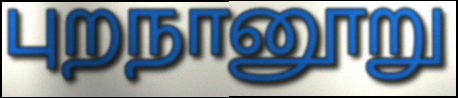
புறநானூறு